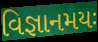
વિજ્ઞાનમયઃ